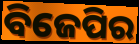
ବିଜେପିର